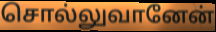
சொல்லுவானேன்